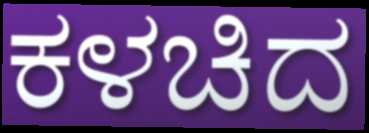
ಕಳಚಿದ